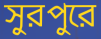
সুরপুরে